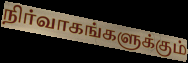
நிர்வாகங்களுக்கும்